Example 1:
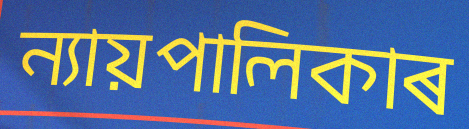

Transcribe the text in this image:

ন্যায়পালিকাৰ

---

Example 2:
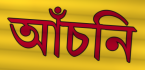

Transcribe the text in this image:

আঁচনি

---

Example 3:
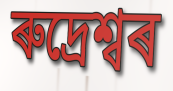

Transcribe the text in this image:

ৰুদ্ৰেশ্বৰ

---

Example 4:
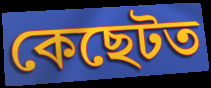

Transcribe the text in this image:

কেছেটত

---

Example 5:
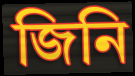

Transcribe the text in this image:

জিনি